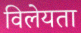
विलेयता